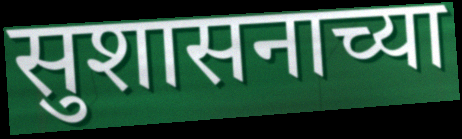
सुशासनाच्या